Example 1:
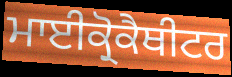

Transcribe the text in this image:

ਮਾਈਕ੍ਰੋਕੈਥੀਟਰ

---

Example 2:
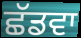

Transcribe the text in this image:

ਛੱਡਵਾ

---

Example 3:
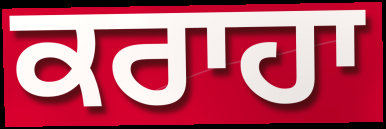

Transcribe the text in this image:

ਕਰਾਹਾ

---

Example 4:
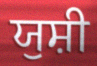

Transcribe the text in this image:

ਯੁਸ਼ੀ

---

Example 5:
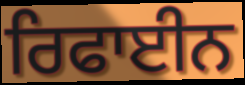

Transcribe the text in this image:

ਰਿਫਾਈਨ